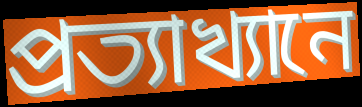
প্রত্যাখ্যানে